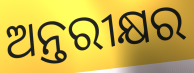
ଅନ୍ତରୀକ୍ଷର